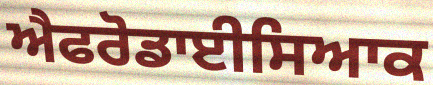
ਐਫਰੋਡਾਈਸਿਆਕ